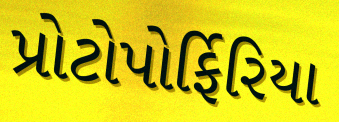
પ્રોટોપોર્ફિરિયા